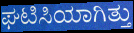
ಘಟಿಸಿಯಾಗಿತ್ತು